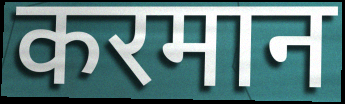
करमान